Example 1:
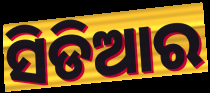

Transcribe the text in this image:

ସିଡିଆର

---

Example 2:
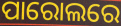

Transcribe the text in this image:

ପାରୋଲରେ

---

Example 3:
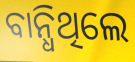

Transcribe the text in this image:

ବାନ୍ଧିଥିଲେ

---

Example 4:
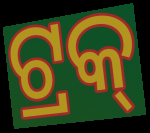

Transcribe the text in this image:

ଟ୍ରକ୍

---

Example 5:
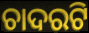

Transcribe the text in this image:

ଚାଦରଟି